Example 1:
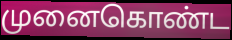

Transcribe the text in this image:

முனைகொண்ட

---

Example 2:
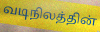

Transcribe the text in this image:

வடிநிலத்தின்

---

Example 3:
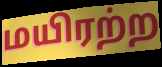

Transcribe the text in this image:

மயிரற்ற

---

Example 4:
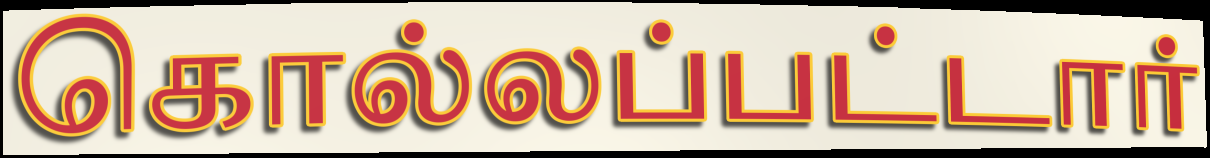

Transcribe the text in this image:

கொல்லப்பட்டார்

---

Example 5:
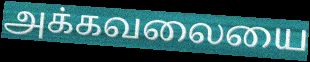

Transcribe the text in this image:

அக்கவலையை